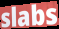
slabs